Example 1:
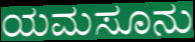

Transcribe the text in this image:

ಯಮಸೂನು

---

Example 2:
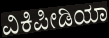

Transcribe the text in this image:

ವಿಕಿಪೀಡಿಯಾ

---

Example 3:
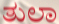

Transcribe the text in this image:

ತುಲಾ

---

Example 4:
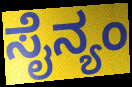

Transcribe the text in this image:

ಸೈನ್ಯಂ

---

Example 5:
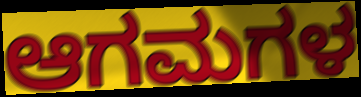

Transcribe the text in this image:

ಆಗಮಗಳ